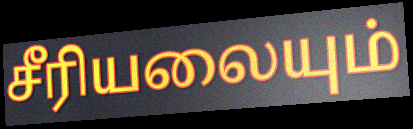
சீரியலையும்